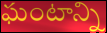
ఘంటాన్ని